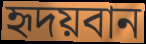
হৃদয়বান